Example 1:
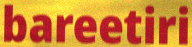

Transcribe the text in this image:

bareetiri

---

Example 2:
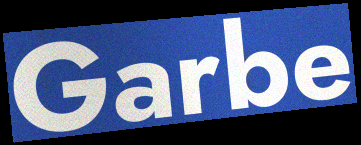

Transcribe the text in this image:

Garbe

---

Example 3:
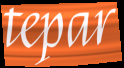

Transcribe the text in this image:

tepar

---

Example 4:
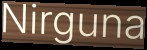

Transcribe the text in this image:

Nirguna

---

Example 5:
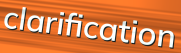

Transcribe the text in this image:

clarification